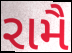
રામૈ